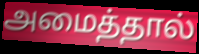
அமைத்தால்